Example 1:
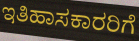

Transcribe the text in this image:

ಇತಿಹಾಸಕಾರರಿಗೆ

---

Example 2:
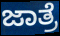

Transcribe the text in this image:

ಜಾತ್ರೆ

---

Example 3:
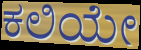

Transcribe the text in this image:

ಕಲಿಯೇ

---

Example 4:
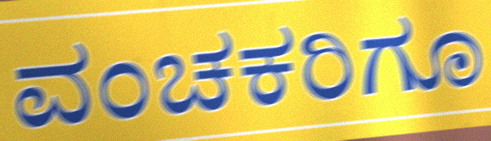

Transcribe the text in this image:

ವಂಚಕರಿಗೂ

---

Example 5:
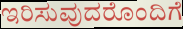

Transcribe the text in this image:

ಇರಿಸುವುದರೊಂದಿಗೆ